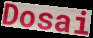
Dosai